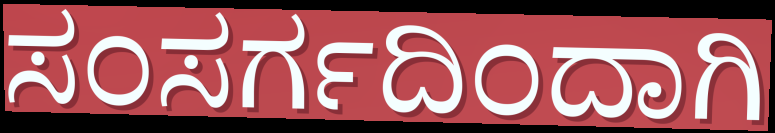
ಸಂಸರ್ಗದಿಂದಾಗಿ